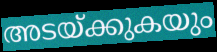
അടയ്ക്കുകയും